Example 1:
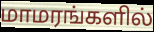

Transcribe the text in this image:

மாமரங்களில்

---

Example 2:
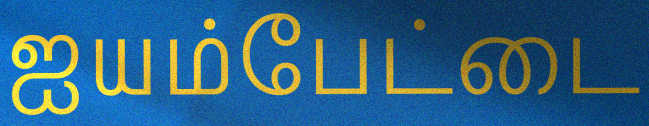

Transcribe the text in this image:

ஐயம்பேட்டை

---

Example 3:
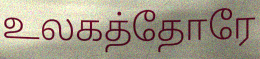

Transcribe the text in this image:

உலகத்தோரே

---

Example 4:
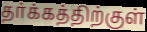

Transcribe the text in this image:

தர்க்கத்திற்குள்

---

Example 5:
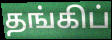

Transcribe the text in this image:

தங்கிப்